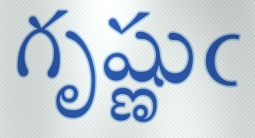
గృష్ణుఁ